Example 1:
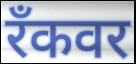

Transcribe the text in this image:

रँकवर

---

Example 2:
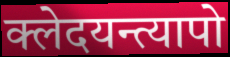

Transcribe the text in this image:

क्लेदयन्त्यापो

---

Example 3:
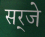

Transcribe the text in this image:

सर्जे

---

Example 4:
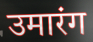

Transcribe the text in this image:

उमारंग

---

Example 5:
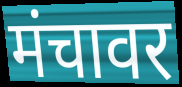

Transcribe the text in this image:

मंचावर